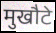
मुखौटे